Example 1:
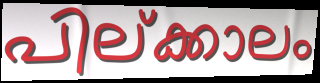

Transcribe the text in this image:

പില്ക്കാലം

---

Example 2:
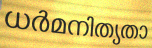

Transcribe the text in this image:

ധർമനിത്യതാ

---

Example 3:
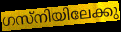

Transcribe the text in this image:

ഗസ്നിയിലേക്കു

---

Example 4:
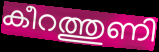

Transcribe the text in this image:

കീറത്തുണി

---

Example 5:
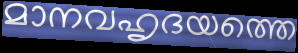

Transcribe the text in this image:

മാനവഹൃദയത്തെ